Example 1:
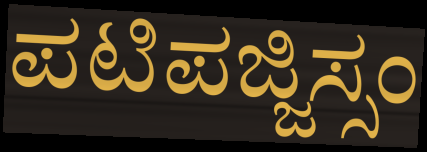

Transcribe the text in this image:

ಪಟಿಪಜ್ಜಿಸ್ಸಂ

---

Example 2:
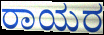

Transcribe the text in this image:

ರಾಯರ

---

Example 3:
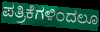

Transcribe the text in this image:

ಪತ್ರಿಕೆಗಳಿಂದಲೂ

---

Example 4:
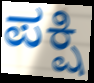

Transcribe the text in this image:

ಪಕ್ಷಿ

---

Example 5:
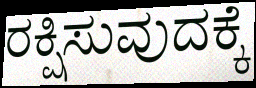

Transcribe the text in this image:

ರಕ್ಷಿಸುವುದಕ್ಕೆ